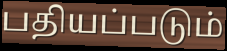
பதியப்படும்